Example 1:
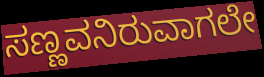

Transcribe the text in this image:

ಸಣ್ಣವನಿರುವಾಗಲೇ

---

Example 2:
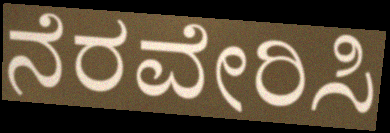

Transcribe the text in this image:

ನೆರವೇರಿಸಿ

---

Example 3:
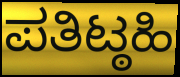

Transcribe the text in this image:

ಪತಿಟ್ಠಹಿ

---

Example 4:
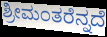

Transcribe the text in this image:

ಶ್ರೀಮಂತರೆನ್ನದೆ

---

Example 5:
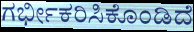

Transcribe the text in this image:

ಗರ್ಭೀಕರಿಸಿಕೊಂಡಿದೆ